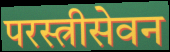
परस्त्रीसेवन